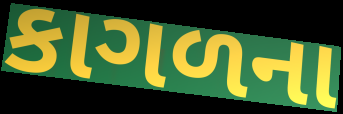
કાગળના